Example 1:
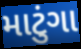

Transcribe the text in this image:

માટુંગા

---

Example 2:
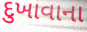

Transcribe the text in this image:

દુખાવાના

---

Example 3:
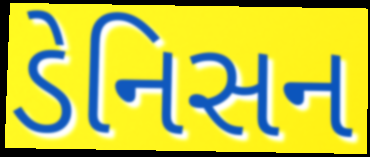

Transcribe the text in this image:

ડેનિસન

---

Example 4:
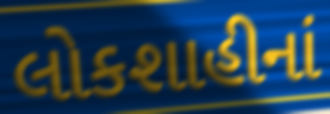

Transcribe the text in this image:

લોકશાહીનાં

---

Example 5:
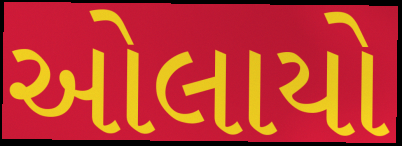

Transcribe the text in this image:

ઓલાયો